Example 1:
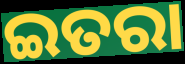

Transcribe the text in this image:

ଇତରା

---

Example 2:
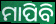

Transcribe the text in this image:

ମାପିବି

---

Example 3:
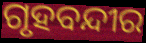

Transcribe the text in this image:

ଗୃହବନ୍ଦୀର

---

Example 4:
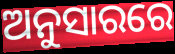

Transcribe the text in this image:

ଅନୁସାରରେ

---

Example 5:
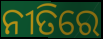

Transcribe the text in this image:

ନୀତିରେ